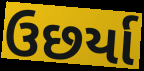
ઉછર્યા